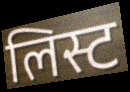
लिस्‍ट